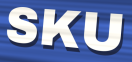
SKU